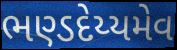
ભણ્ડદેય્યમેવ